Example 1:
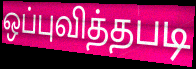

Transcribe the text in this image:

ஒப்புவித்தபடி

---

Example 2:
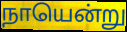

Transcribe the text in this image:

நாயென்று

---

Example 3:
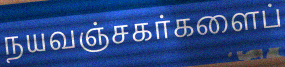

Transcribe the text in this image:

நயவஞ்சகர்களைப்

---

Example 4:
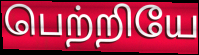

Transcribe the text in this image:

பெற்றியே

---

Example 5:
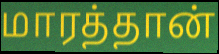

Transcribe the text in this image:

மாரத்தான்